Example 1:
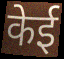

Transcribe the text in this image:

केई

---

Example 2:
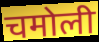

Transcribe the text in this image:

चमोली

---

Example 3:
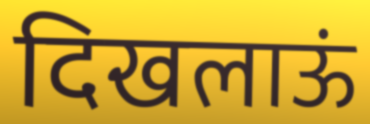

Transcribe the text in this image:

दिखलाऊं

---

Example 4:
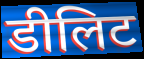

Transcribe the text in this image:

डीलिट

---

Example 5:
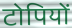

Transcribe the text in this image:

टोपियों